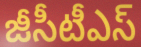
జీసీటీఎస్